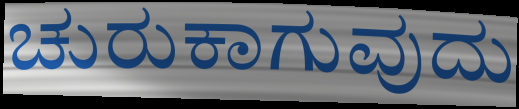
ಚುರುಕಾಗುವುದು